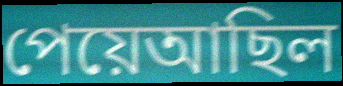
পেয়েআছিল